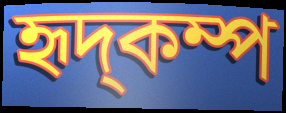
হৃদ্কম্প